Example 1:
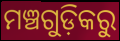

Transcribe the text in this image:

ମଞ୍ଚଗୁଡ଼ିକରୁ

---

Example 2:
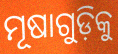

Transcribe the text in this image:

ମୂଷାଗୁଡ଼ିକୁ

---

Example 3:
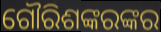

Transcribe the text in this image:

ଗୌରିଶଙ୍କରଙ୍କର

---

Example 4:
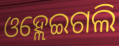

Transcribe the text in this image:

ଓହ୍ଲେଇଗଲି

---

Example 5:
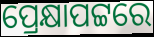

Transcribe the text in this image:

ପ୍ରେକ୍ଷାପଟ୍ଟରେ